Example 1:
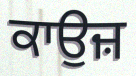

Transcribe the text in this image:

ਕਾਉਜ਼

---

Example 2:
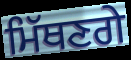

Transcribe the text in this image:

ਮਿੱਥਣਗੇ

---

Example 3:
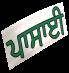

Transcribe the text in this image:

ਪਾਸਾਈ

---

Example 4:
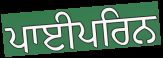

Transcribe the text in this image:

ਪਾਈਪਰਿਨ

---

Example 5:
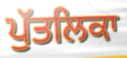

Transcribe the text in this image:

ਪੁੱਤਲਿਕਾ